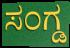
ಸಂಗ್ಡ